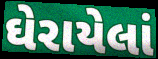
ઘેરાયેલાં